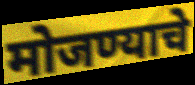
मोजण्याचे